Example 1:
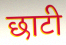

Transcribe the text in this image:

छाटी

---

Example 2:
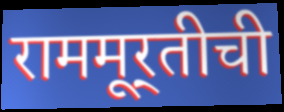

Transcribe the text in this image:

राममूर्तीची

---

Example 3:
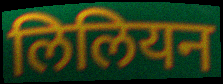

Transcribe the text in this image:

लिलियन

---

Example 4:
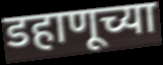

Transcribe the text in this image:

डहाणूच्या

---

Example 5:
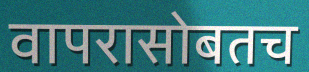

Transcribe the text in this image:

वापरासोबतच